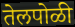
तेलपोळी